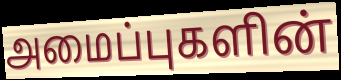
அமைப்புகளின்